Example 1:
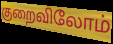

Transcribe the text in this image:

குறைவிலோம்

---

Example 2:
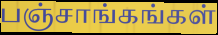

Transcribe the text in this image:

பஞ்சாங்கங்கள்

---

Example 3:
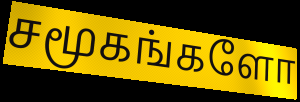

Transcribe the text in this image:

சமூகங்களோ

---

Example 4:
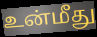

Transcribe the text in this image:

உன்மீது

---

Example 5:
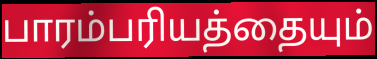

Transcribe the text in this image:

பாரம்பரியத்தையும்